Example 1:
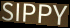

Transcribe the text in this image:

SIPPY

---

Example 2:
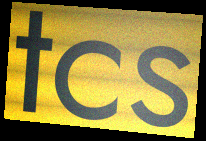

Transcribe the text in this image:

tcs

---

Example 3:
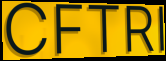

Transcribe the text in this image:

CFTRI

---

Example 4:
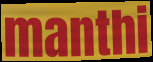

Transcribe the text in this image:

manthi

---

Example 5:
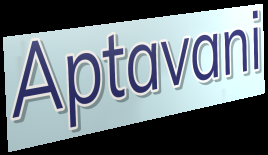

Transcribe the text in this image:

Aptavani